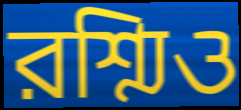
রশ্মিও